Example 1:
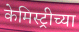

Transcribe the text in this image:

केमिस्ट्रीच्या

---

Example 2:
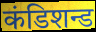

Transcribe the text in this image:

कंडिशन्ड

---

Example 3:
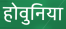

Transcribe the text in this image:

होवुनिया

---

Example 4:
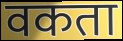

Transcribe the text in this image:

वकता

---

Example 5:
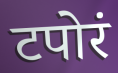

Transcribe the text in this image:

टपोरं